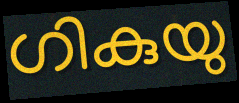
ഗികുയു